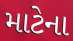
માટેના